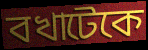
বখাটেকে